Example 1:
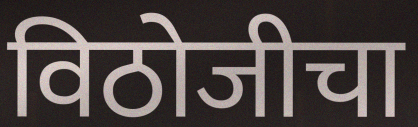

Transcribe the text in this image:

विठोजीचा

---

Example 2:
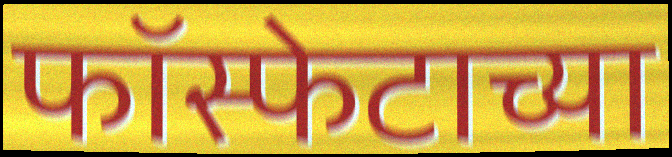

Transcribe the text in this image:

फॉस्फेटाच्या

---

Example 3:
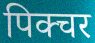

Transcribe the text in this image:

पिक्चर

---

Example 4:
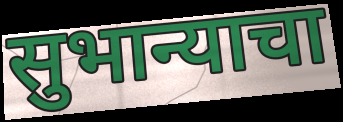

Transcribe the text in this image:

सुभान्याचा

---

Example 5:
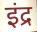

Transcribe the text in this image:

इंद्र